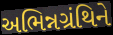
અભિન્નગ્રંથિને